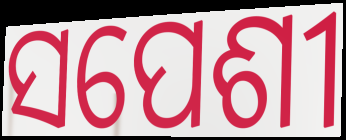
ସପେଶୀ